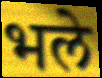
भले